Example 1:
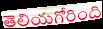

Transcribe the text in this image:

తెలియగోరింది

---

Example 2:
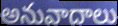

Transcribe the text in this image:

అనువాదాలు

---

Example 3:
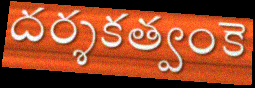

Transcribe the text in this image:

దర్శకత్వంకె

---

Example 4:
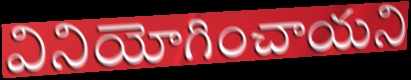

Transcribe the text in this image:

వినియోగించాయని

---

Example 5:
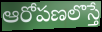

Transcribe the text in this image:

ఆరోపణలొస్తే